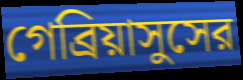
গেব্রিয়াসুসের